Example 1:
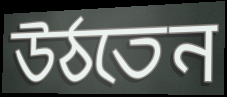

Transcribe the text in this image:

উঠতেন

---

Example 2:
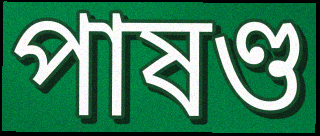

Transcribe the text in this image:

পাষণ্ড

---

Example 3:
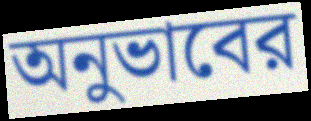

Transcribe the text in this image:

অনুভাবের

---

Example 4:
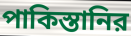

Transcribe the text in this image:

পাকিস্তানির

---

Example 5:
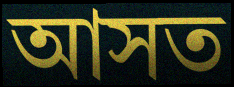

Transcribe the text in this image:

আসত